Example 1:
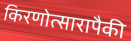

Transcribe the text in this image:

किरणोत्सारापैकी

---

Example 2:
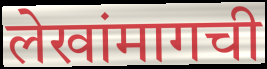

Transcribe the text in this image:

लेखांमागची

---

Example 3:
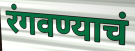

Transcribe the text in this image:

रंगवण्याचं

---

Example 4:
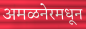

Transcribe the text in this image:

अमळनेरमधून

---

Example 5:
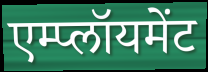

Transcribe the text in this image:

एम्प्लॉयमेंट